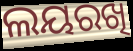
ଲୟରଖି